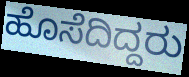
ಹೊಸೆದಿದ್ದರು